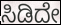
ಸಿಡಿದೇ